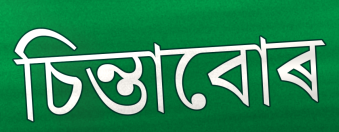
চিন্তাবোৰ